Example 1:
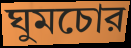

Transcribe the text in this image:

ঘুমচোর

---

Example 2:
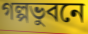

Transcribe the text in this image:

গল্পভুবনে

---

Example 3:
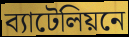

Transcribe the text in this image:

ব্যাটেলিয়নে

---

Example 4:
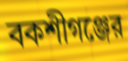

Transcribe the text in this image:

বকশীগঞ্জের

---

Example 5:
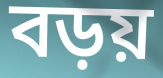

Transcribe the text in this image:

বড়য়